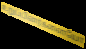
உறுப்பினர்களையோ